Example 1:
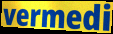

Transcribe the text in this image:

vermedi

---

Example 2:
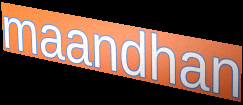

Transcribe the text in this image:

maandhan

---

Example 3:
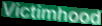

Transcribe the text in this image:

Victimhood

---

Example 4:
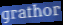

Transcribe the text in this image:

grathor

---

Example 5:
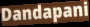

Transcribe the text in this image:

Dandapani